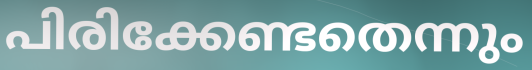
പിരിക്കേണ്ടതെന്നും